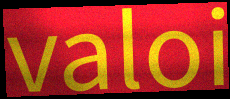
valoi